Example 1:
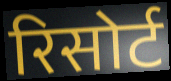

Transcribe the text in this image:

रिसोर्ट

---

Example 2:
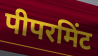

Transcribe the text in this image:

पीपरमिंट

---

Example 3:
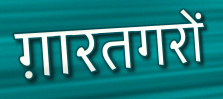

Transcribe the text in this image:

ग़ारतगरों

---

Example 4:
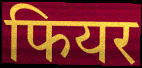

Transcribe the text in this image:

फियर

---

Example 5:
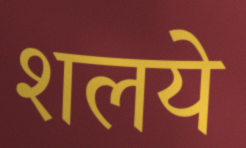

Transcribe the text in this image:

शलये